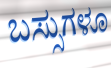
ಬಸ್ಸುಗಳೂ